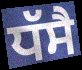
ਧੱਸੈ